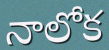
నాలోక